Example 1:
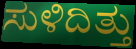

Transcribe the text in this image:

ಸುಳಿದಿತ್ತು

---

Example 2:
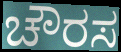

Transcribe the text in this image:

ಚೌರಸ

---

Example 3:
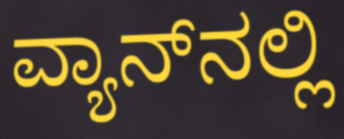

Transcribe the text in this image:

ವ್ಯಾನ್‌ನಲ್ಲಿ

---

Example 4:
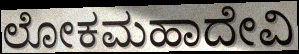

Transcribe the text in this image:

ಲೋಕಮಹಾದೇವಿ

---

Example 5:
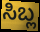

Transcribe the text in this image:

ಸಿಬ್ಲ